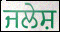
ਜਲੇਸ਼